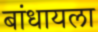
बांधायला